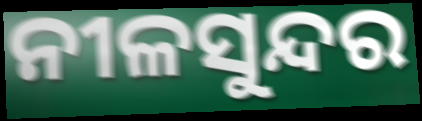
ନୀଳସୁନ୍ଦର